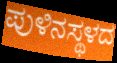
ಪುಳಿನಸ್ಥಳದ